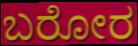
ಬರೋರ